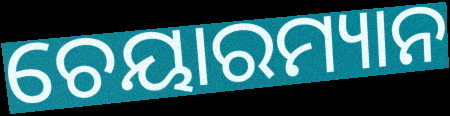
ଚେୟାରମ୍ୟାନ